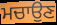
ਮਚਾਉਣ